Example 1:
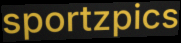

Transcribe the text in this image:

sportzpics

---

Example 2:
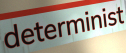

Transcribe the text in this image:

determinist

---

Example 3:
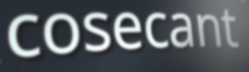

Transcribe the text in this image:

cosecant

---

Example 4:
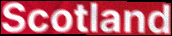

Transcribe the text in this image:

Scotland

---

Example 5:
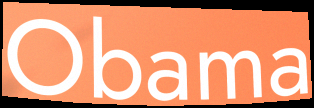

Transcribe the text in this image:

Obama